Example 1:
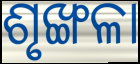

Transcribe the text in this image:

ଶୃଙ୍ଖଳା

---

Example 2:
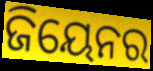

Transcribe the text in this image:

ଜିୟେନର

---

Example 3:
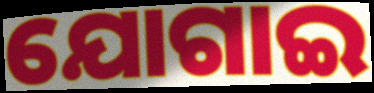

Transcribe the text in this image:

ଯୋଗାଇ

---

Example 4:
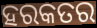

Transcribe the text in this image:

ହରକତର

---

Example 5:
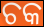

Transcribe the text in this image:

ଚକ